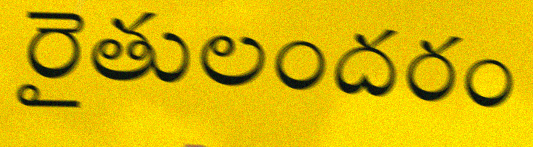
రైతులందరం